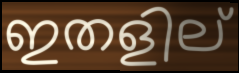
ഇതളില്